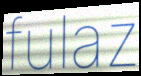
fulaz